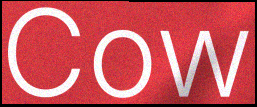
Cow